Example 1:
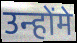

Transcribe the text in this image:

उन्होंमे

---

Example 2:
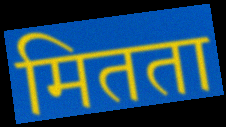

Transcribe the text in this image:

मितता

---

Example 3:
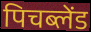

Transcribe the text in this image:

पिचब्लेंड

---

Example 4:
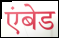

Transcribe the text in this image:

एंबेड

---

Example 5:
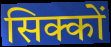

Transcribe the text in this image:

सिक्कों